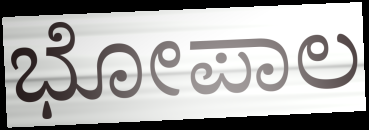
ಭೋಪಾಲ